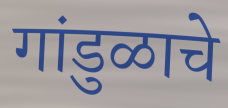
गांडुळाचे